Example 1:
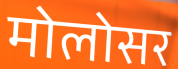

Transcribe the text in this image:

मोलोसर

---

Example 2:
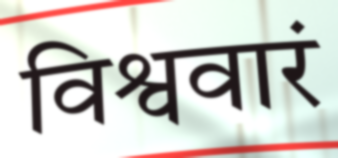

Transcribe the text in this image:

विश्ववारं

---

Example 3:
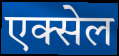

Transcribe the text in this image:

एक्‍सेल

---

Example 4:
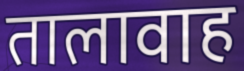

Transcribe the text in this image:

तालावाह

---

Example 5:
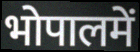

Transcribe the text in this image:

भोपालमें